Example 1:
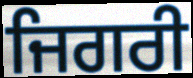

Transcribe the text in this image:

ਜਿਗਰੀ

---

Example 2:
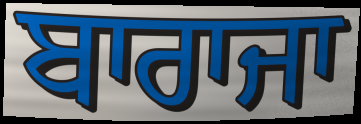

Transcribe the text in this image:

ਬਾਰਾਜਾ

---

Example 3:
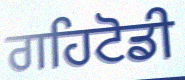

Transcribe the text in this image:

ਗਹਿਟੋਡੀ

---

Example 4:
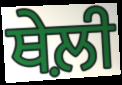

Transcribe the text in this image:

ਥੇਲ਼ੀ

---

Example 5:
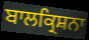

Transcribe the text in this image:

ਬਾਲਕ੍ਰਿਸ਼ਨਾ